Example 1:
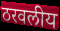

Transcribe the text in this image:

ठरवलीय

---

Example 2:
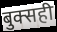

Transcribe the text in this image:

बुक्सही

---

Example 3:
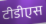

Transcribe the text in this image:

टीडीएस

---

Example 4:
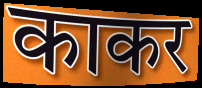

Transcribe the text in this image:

काकर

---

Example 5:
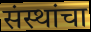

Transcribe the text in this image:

संस्थांचा